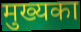
मुख्यका